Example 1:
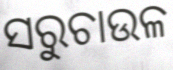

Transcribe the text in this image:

ସରୁଚାଉଳ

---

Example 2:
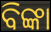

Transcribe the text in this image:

ବିଙ୍କା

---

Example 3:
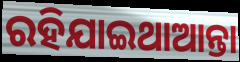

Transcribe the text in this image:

ରହିଯାଇଥାଆନ୍ତା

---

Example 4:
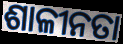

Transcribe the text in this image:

ଶାଳୀନତା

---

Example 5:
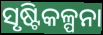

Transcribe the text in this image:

ସୃଷ୍ଟିକଳ୍ପନା